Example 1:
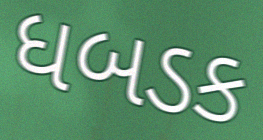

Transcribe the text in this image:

ધબડક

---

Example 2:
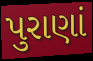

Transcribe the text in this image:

પુરાણાં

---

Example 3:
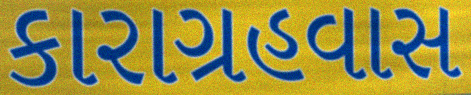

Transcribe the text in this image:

કારાગ્રહવાસ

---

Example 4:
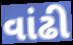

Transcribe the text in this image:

વાંઢી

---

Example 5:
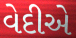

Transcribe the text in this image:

વેદીએ